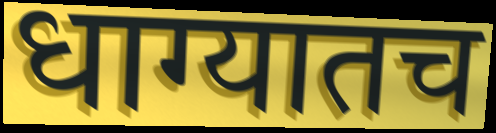
धाग्यातच